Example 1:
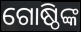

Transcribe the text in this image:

ଗୋଷ୍ଠିଙ୍କ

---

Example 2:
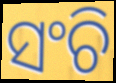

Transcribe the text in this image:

ସଂଚି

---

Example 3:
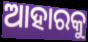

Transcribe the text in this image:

ଆହାରକୁ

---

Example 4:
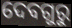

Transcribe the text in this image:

ଦେବଗୁରୁ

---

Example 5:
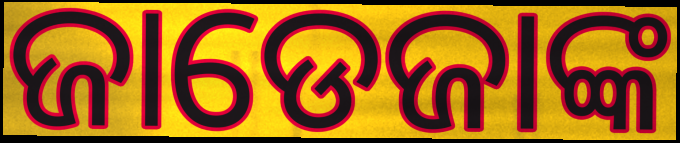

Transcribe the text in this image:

ଜାଡେଜାଙ୍କ